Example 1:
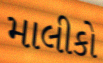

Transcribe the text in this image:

માલીકો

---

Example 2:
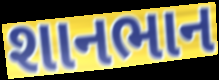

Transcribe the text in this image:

શાનભાન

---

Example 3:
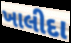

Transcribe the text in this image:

ખાલીદા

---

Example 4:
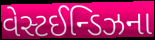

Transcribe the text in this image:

વેસ્ટઈન્ડિઝના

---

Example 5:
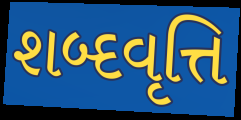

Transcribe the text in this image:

શબ્દવૃત્તિ